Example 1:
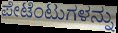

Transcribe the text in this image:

ಪೇಟೆಂಟುಗಳನ್ನು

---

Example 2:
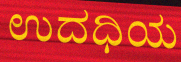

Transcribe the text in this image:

ಉದಧಿಯ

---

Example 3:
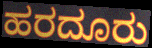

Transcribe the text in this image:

ಹರದೂರು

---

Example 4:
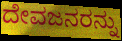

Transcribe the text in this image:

ದೇವಜನರನ್ನು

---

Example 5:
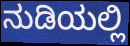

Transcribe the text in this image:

ನುಡಿಯಲ್ಲಿ